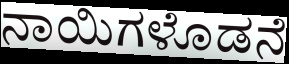
ನಾಯಿಗಳೊಡನೆ